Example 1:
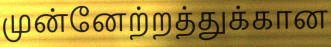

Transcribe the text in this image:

முன்னேற்றத்துக்கான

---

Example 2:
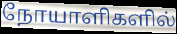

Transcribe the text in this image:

நோயாளிகளில்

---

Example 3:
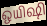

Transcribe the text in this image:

ஒயிஷி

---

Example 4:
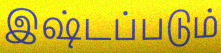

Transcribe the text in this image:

இஷ்டப்படும்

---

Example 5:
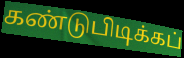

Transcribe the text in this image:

கண்டுபிடிக்கப்